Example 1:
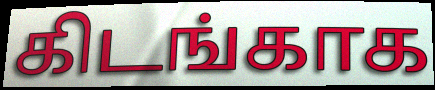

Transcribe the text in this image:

கிடங்காக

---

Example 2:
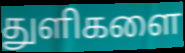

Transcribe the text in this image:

துளிகளை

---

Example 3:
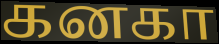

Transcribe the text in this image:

கனகா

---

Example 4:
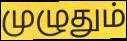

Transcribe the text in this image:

முழுதும்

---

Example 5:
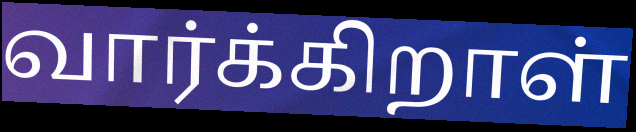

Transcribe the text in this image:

வார்க்கிறாள்